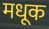
मधूक